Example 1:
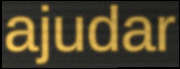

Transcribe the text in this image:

ajudar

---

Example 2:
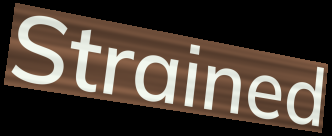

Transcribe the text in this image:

Strained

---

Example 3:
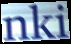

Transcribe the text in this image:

nki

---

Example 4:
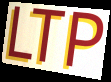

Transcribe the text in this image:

LTP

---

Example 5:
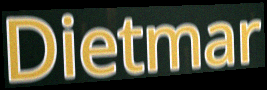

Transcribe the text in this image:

Dietmar